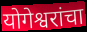
योगेश्वरांचा